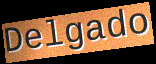
Delgado